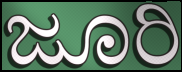
ಜೂರಿ